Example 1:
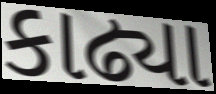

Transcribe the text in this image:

કાઢ્યા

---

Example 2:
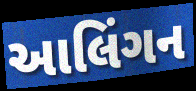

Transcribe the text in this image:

આલિંગન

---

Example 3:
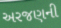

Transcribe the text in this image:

અરજણની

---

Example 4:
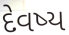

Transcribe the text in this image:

દેવષ્ય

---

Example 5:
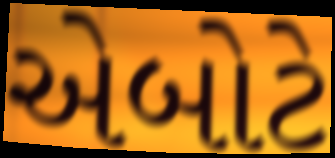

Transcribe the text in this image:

એબોટે